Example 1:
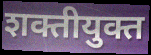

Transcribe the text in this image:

शक्तीयुक्त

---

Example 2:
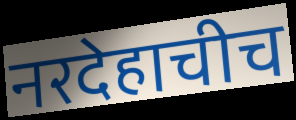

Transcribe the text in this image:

नरदेहाचीच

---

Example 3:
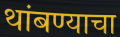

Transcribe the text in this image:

थांबण्याचा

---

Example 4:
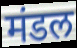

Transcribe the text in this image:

मंडल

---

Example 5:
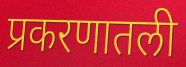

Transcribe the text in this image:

प्रकरणातली